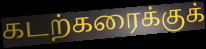
கடற்கரைக்குக்